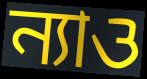
ন্যাও